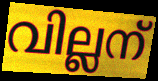
വില്ലന്